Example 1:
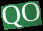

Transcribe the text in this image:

QO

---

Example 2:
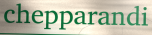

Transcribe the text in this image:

chepparandi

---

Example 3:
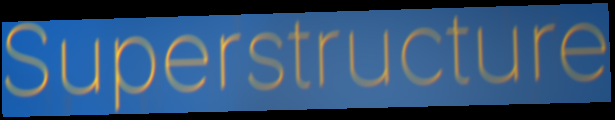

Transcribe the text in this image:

Superstructure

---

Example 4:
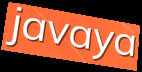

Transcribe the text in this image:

javaya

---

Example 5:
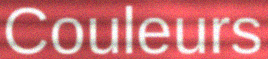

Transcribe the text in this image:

Couleurs